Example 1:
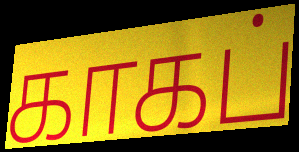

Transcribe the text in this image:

காகப்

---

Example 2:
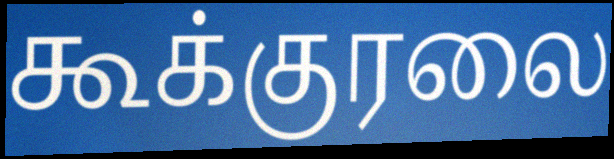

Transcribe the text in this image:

கூக்குரலை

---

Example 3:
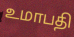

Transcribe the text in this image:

உமாபதி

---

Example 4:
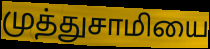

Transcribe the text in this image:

முத்துசாமியை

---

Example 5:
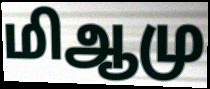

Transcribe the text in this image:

மிஆமு